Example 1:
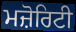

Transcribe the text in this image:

ਮਜ਼ੋਰਿਟੀ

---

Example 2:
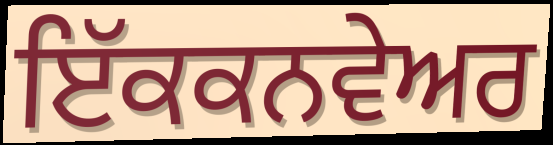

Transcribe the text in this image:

ਇੱਕਕਨਵੇਅਰ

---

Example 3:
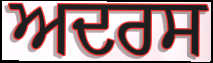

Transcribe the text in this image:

ਅਦਰਸ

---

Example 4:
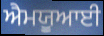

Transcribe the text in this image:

ਐਮਯੂਆਈ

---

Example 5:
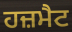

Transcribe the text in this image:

ਹਜ਼ਮੈਟ